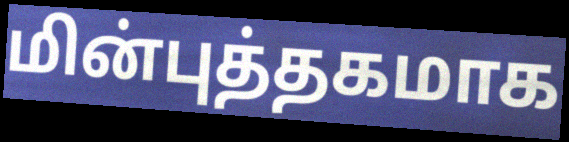
மின்புத்தகமாக